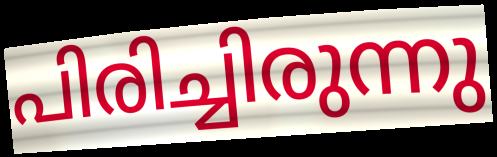
പിരിച്ചിരുന്നു